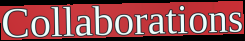
Collaborations